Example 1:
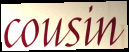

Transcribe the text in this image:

cousin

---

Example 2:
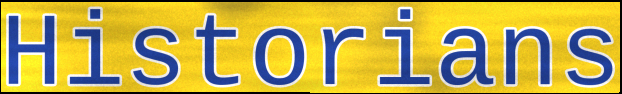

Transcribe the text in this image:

Historians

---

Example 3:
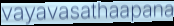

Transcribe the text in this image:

vayavasathaapana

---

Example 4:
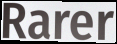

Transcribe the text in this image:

Rarer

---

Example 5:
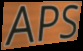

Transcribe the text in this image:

APS